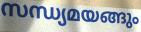
സന്ധ്യമയങ്ങും